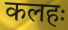
कलहः